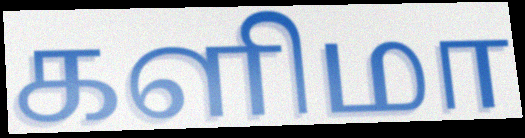
களிமா